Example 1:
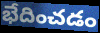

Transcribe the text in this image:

భేదించడం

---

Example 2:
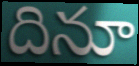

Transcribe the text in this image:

దినూ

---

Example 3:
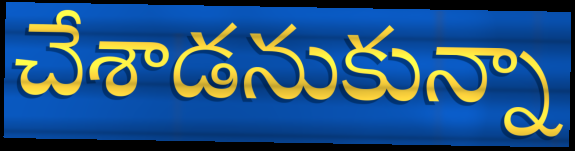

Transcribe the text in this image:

చేశాడనుకున్నా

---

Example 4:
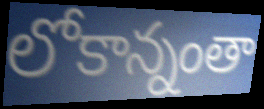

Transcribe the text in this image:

లోకాన్నంతా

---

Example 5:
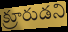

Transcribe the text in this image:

క్రూరుడని